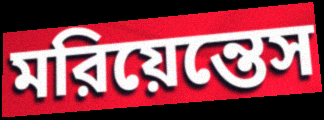
মরিয়েন্তেস